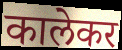
कालेकर